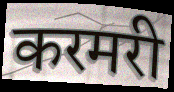
करमरी